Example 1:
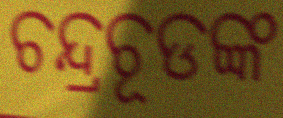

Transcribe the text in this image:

ଚନ୍ଦ୍ରଚୂଡଙ୍କ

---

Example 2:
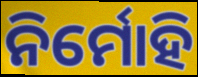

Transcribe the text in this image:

ନିର୍ମୋହି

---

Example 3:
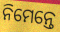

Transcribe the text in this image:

ନିମେନ୍ତେ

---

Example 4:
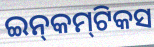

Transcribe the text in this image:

ଇନ୍‍କମ୍‍ଟିକସ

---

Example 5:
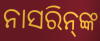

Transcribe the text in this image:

ନାସରିନ୍‌ଙ୍କ